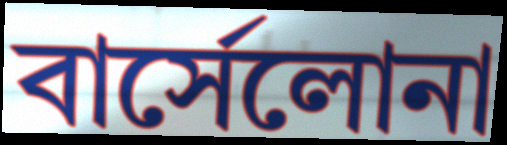
বার্সেলোনা